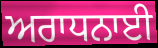
ਅਰਾਧਨਾਈ